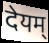
देयम्